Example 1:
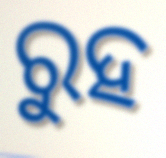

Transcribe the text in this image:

ରୁହ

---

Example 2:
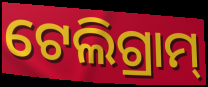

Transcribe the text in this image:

ଟେଲିଗ୍ରାମ୍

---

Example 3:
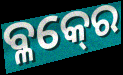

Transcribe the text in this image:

ବ୍ଳକ୍‍ରେ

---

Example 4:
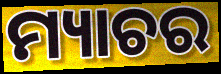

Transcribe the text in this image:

ମ୍ୟାଚର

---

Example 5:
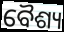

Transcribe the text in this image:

ବୈଶ୍ୟ